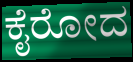
ಕೈರೋದ